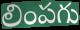
లింపగు